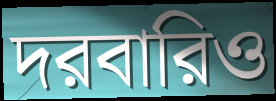
দরবারিও